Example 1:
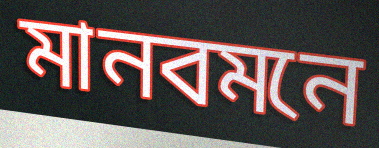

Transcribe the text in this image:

মানবমনে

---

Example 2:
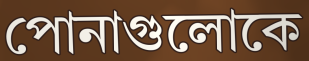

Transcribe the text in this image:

পোনাগুলোকে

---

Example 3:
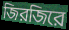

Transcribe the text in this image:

জিরজিরে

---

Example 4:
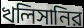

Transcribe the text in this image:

খলিসানির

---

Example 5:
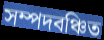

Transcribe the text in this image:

সম্পদবঞ্চিত